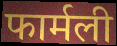
फार्मली